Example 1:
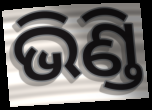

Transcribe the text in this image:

ଭିଣ୍ଡି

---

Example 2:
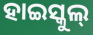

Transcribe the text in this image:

ହାଇସ୍କୁଲ୍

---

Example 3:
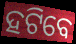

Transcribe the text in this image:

ହଟିବେ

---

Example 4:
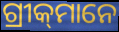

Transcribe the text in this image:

ଗ୍ରୀକ୍‌ମାନେ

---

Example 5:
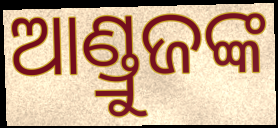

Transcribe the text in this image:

ଆଣ୍ଡ୍ରୁଜଙ୍କ